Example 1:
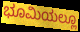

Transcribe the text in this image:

ಭೂಮಿಯಲ್ಲೂ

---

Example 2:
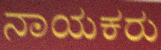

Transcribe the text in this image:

ನಾಯಕರು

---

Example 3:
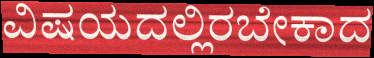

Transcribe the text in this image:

ವಿಷಯದಲ್ಲಿರಬೇಕಾದ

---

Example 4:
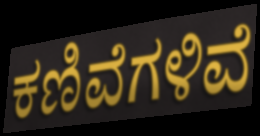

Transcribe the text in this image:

ಕಣಿವೆಗಳಿವೆ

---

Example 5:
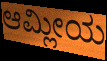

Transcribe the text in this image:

ಆಮ್ಲೀಯ